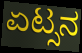
ಏಟ್ಸನ